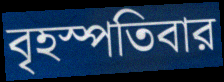
বৃহস্পতিবার